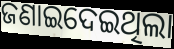
ଜଣାଇଦେଇଥିଲା